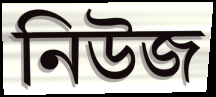
নিউজ